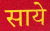
साये